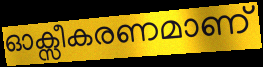
ഓക്സീകരണമാണ്